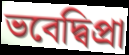
ভবেদ্বিপ্রা